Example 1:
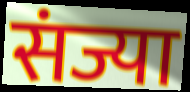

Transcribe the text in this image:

संज्या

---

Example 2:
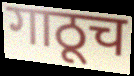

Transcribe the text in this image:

गाठूच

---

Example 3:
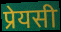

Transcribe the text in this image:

प्रेयसी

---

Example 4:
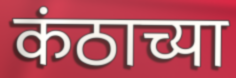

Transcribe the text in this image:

कंठाच्या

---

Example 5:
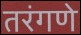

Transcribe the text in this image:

तरंगणे